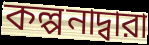
কল্পনাদ্বারা